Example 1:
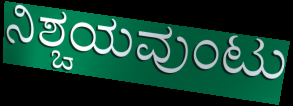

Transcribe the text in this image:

ನಿಶ್ಚಯವುಂಟು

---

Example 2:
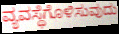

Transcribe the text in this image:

ವ್ಯವಸ್ಥೆಗೊಳಿಸುವುದು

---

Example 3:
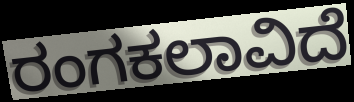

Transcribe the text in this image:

ರಂಗಕಲಾವಿದೆ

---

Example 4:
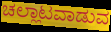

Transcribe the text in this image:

ಚಲ್ಲಾಟವಾಡುವ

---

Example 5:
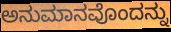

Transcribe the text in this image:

ಅನುಮಾನವೊಂದನ್ನು